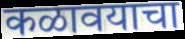
कळावयाचा